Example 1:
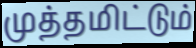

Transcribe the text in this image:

முத்தமிட்டும்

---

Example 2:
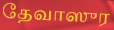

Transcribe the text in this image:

தேவாஸுர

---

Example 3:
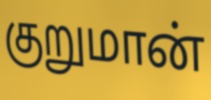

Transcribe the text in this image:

குறுமான்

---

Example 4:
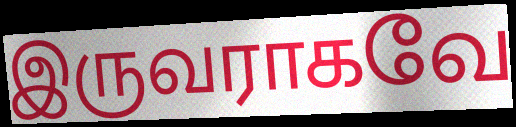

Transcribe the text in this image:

இருவராகவே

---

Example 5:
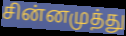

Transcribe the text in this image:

சின்னமுத்து